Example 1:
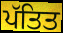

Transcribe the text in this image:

ਪੱਤਿਤ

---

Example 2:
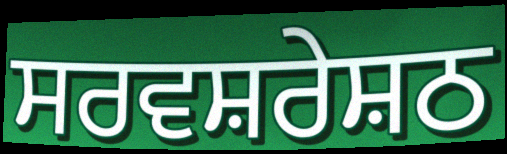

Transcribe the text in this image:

ਸਰਵਸ਼ਰੇਸ਼ਠ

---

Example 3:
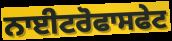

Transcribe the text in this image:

ਨਾਈਟਰੋਫਾਸਫੇਟ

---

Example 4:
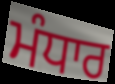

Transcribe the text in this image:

ਮੰਧਾਰ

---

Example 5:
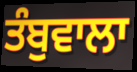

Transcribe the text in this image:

ਤੰਬੁਵਾਲਾ